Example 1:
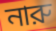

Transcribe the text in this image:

নারু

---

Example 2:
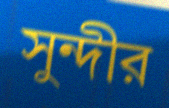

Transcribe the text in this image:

সুন্দীর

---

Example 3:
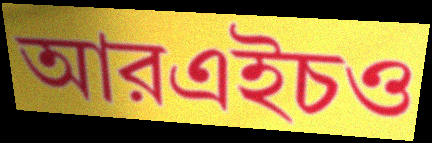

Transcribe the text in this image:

আরএইচও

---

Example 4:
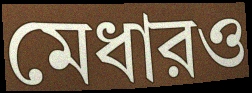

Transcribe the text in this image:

মেধারও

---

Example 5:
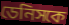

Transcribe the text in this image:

ডেনিসকে